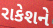
રાકેશને